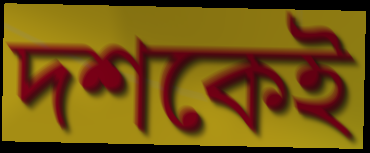
দশকেই